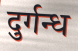
दुर्गन्ध